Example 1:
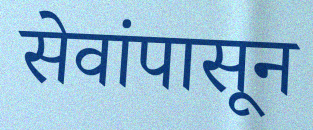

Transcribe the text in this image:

सेवांपासून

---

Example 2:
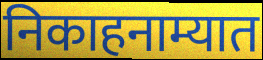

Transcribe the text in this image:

निकाहनाम्यात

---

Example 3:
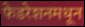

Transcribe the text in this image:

फेडरेशनमधून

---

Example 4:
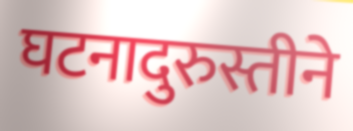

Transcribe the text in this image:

घटनादुरुस्तीने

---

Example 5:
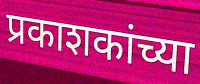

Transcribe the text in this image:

प्रकाशकांच्या